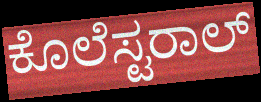
ಕೊಲೆಸ್ಟರಾಲ್